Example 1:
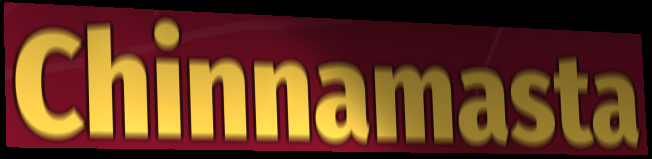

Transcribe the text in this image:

Chinnamasta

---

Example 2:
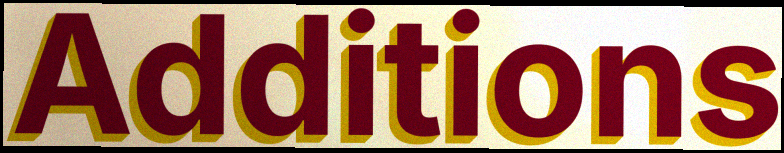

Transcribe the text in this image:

Additions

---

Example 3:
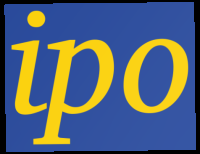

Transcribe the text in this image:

ipo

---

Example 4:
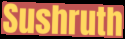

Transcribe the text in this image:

Sushruth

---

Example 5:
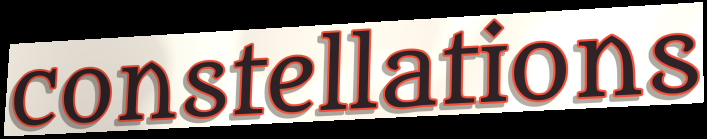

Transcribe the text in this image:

constellations